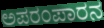
ಅಪರಂಪಾರನ